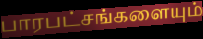
பாரபட்சங்களையும்